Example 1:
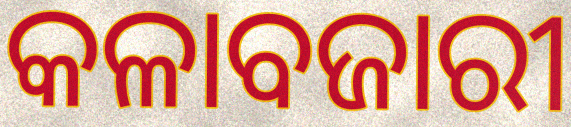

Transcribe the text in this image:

କଳାବଜାରୀ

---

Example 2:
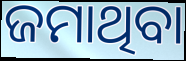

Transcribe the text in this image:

ଜମାଥିବା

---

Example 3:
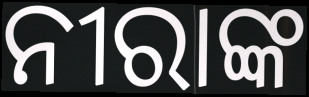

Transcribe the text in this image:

ନୀରାଙ୍କ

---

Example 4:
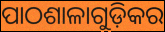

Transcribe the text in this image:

ପାଠଶାଳାଗୁଡ଼ିକର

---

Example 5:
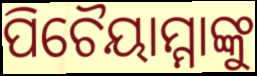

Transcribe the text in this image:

ପିଚୈୟାମ୍ମାଙ୍କୁ